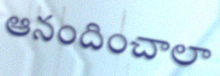
ఆనందించాలా